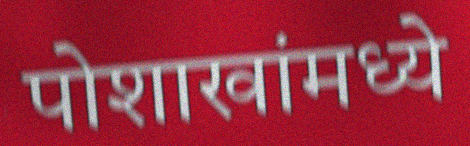
पोशाखांमध्ये